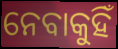
ନେବାକୁହିଁ